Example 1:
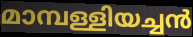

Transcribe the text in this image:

മാമ്പള്ളിയച്ചൻ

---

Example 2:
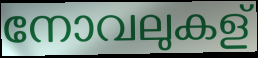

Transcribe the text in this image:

നോവലുകള്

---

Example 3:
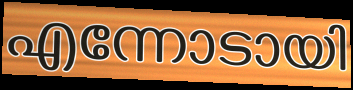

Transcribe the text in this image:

എന്നോടായി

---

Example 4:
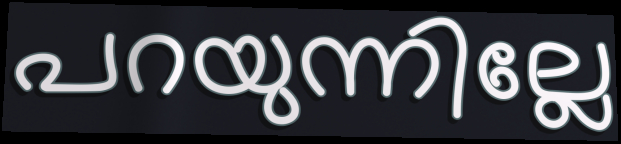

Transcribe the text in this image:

പറയുന്നില്ലേ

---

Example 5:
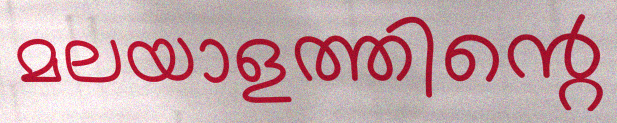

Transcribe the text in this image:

മലയാളത്തിന്റെ